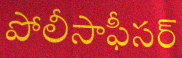
పోలీసాఫీసర్